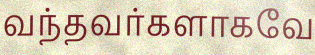
வந்தவர்களாகவே